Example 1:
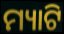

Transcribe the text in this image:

ମ୍ୟାଟି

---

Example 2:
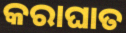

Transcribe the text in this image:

କରାଘାତ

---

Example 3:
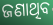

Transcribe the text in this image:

ଜଣାଥିବ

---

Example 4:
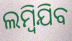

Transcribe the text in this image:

ଲମ୍ୱିଯିବ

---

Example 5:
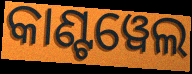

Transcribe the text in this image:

କାଣ୍ଟୱେଲ